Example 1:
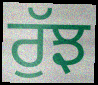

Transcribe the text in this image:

ਰੁੱਝ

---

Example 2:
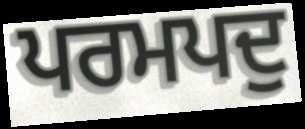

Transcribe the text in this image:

ਪਰਮਪਦੁ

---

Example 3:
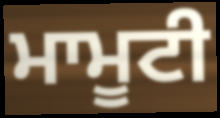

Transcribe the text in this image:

ਮਾਮੂਟੀ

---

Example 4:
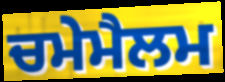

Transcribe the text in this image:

ਚਮੇਮੈਲਮ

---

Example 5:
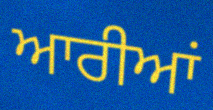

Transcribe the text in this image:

ਆਰੀਆਂ